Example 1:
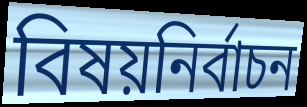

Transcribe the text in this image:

বিষয়নির্বাচন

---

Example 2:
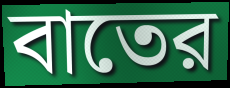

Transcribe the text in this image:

বাতের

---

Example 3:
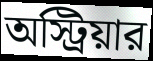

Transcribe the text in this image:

অস্ট্রিয়ার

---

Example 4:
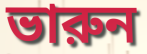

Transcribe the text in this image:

ভারুন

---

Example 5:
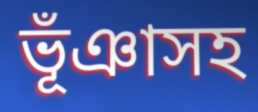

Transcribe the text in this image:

ভূঁঞাসহ